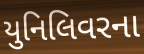
યુનિલિવરના